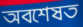
অবশেষত